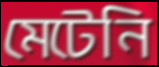
মেটেনি